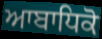
ਆਬਾਧਿਕੋ